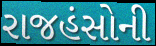
રાજહંસોની